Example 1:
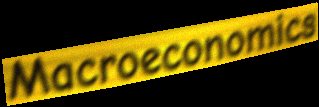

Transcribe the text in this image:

Macroeconomics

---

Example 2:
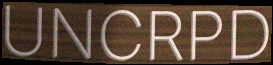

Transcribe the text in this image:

UNCRPD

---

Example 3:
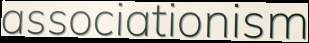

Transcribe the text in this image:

associationism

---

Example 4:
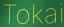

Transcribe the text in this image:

Tokai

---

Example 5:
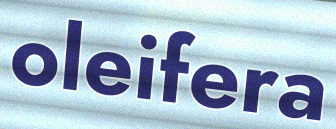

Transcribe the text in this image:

oleifera